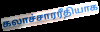
கலாச்சாரரீதியாக